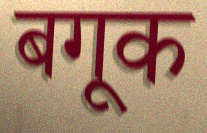
बगूक